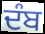
ਦੰਬ